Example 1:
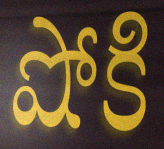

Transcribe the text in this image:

షోకి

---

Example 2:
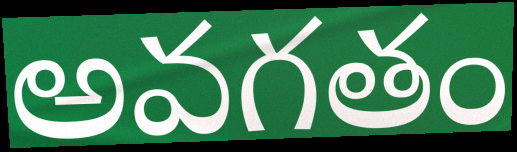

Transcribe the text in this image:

అవగతం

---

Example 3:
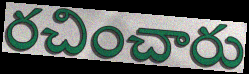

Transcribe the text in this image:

రచించారు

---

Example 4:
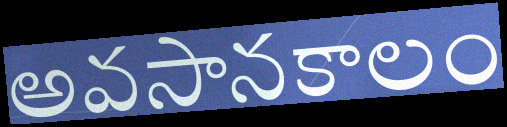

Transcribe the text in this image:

అవసానకాలం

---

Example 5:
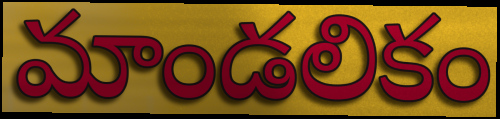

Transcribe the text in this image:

మాండలికం